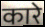
कारे